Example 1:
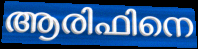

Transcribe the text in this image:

ആരിഫിനെ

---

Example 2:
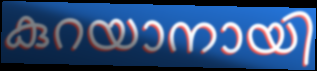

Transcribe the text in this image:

കുറയാനായി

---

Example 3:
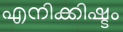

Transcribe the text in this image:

എനിക്കിഷ്ടം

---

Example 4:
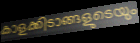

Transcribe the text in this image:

കാളക്കിടാങ്ങളുടെയും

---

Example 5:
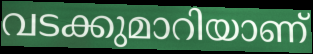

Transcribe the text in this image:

വടക്കുമാറിയാണ്